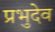
प्रभुदेव